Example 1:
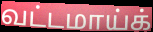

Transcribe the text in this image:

வட்டமாய்க்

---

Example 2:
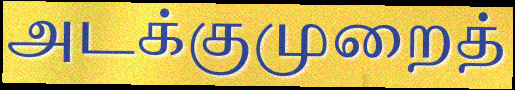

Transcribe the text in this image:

அடக்குமுறைத்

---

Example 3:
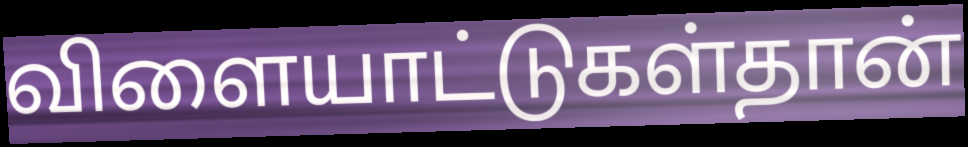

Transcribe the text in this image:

விளையாட்டுகள்தான்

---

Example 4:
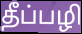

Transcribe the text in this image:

தீப்பழி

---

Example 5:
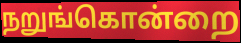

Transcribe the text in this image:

நறுங்கொன்றை